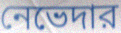
নেভেদার